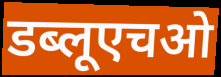
डब्लूएचओ